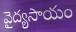
వైద్యసాయం